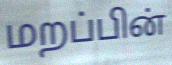
மறப்பின்